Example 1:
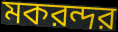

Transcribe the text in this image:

মকরন্দর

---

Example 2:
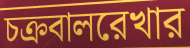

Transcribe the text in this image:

চক্রবালরেখার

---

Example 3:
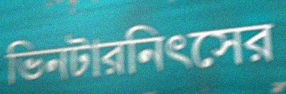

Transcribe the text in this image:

ভিনটারনিৎসের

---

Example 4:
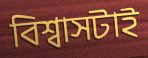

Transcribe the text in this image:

বিশ্বাসটাই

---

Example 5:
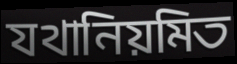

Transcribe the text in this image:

যথানিয়মিত